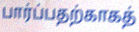
பார்ப்பதற்காகத்